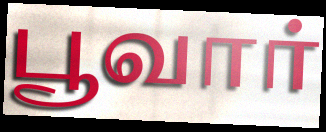
பூவார்